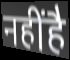
नहींहै